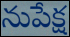
నుపేక్ష